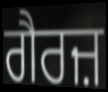
ਗੈਰਜ਼